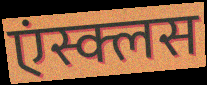
एंस्क्लस